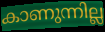
കാണുന്നില്ല